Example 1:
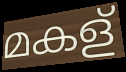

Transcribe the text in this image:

മകള്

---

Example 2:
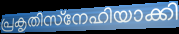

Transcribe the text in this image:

പ്രകൃതിസ്‌നേഹിയാക്കി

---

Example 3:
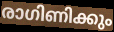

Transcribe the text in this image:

രാഗിണിക്കും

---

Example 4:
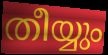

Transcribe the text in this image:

തീയ്യും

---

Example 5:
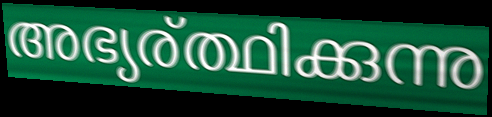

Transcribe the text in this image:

അഭ്യര്ത്ഥിക്കുന്നു